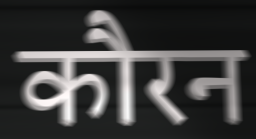
कौरन